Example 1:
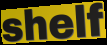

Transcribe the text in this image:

shelf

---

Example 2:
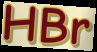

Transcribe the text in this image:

HBr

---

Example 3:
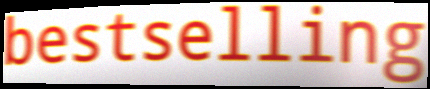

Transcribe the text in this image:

bestselling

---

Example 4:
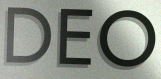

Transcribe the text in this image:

DEO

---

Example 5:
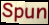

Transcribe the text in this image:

Spun